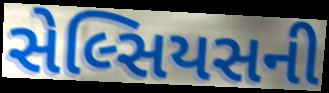
સેલ્સિયસની